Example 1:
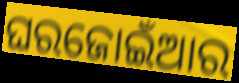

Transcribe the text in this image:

ଘରଜୋଇଁଆର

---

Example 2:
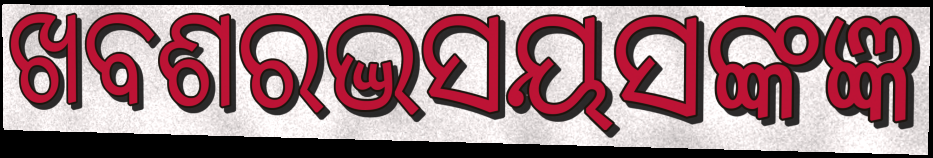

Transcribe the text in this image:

ଖବଶରଦ୍ଭସୟସଙ୍କଜ୍ଞ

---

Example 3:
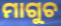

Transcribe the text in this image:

ମାଗୁଚ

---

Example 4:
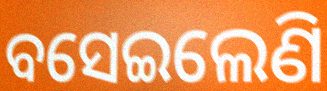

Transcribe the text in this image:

ବସେଇଲେଣି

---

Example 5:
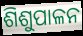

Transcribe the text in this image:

ଶିଶୁପାଳନ